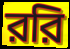
ররি